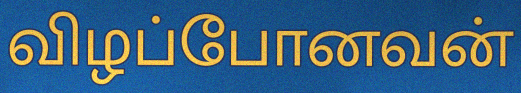
விழப்போனவன்